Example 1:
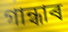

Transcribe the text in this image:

গান্ধাৰ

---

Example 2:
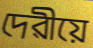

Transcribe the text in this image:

দেৱীয়ে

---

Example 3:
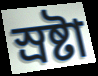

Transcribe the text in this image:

স্ৰষ্টা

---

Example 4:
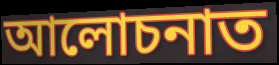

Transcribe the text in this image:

আলোচনাত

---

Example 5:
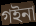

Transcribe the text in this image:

গইনা